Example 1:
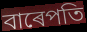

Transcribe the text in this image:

বাৰেপতি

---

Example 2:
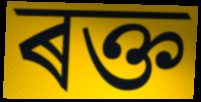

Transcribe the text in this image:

ৰক্ত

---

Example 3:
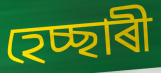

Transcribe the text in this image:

হেচ্ছাৰী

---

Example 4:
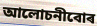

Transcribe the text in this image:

আলোচনীবোৰ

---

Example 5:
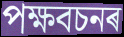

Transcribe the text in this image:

পক্ষবচনৰ